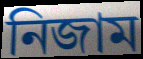
নিজাম